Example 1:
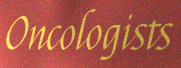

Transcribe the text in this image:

Oncologists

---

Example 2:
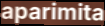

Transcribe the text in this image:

aparimita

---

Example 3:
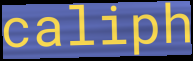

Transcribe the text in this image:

caliph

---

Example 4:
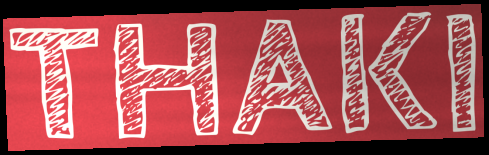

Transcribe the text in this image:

THAKI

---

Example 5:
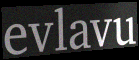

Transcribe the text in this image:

evlavu